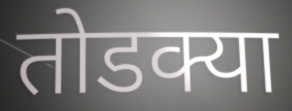
तोडक्या